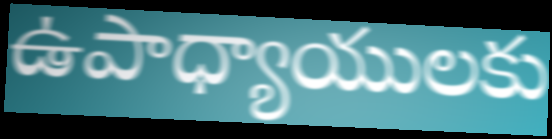
ఉపాధ్యాయులకు